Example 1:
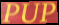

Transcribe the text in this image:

PUP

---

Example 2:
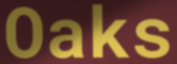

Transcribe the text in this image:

Oaks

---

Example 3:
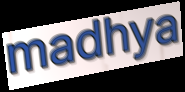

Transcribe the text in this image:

madhya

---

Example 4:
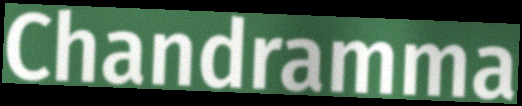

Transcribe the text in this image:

Chandramma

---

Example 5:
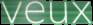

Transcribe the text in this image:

veux